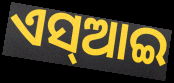
ଏସ୍ଆଇ